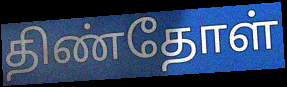
திண்தோள்